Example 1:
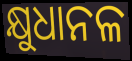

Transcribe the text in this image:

କ୍ଷୁଧାନଳ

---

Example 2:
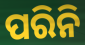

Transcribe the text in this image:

ପରିନି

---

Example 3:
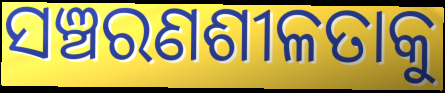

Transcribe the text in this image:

ସଞ୍ଚରଣଶୀଳତାକୁ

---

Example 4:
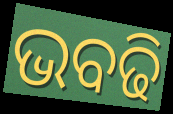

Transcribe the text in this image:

ଭବଢି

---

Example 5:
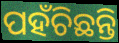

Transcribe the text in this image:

ପହଁଚିଛନ୍ତି